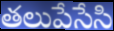
తలుపేసేసి